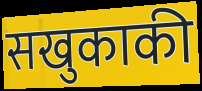
सखुकाकी